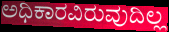
ಅಧಿಕಾರವಿರುವುದಿಲ್ಲ